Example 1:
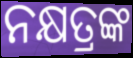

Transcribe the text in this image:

ନକ୍ଷତ୍ରଙ୍କ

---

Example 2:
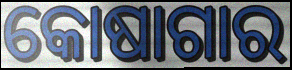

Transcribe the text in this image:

କୋଷାଗାର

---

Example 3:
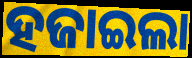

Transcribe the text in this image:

ହଜାଇଲା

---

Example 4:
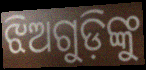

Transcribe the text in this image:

ଝିଅଗୁଡ଼ିଙ୍କୁ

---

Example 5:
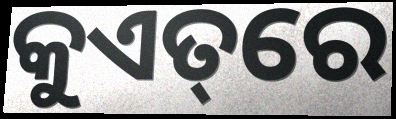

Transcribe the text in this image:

କୁଏତ୍‌ରେ